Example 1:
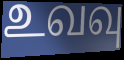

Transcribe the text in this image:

உவவு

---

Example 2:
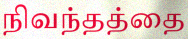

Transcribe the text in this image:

நிவந்தத்தை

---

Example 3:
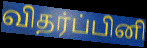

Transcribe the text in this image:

விதர்ப்பினி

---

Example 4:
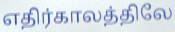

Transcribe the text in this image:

எதிர்காலத்திலே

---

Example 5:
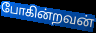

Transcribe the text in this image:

போகின்றவன்